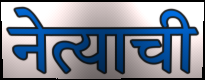
नेत्याची